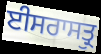
ਈਸਰਾਸਤ੍ਰੁ